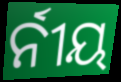
ର୍ନୀୟ